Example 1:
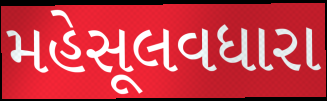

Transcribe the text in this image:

મહેસૂલવધારા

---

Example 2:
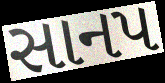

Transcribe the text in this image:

સાનપ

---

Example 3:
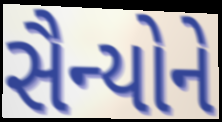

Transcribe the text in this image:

સૈન્યોને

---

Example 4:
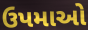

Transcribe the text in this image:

ઉપમાઓ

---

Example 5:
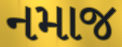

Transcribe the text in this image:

નમાજ